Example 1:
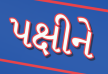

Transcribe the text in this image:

પક્ષીને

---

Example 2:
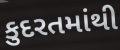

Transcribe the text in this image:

કુદરતમાંથી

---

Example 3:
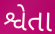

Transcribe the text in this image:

શ્વેતા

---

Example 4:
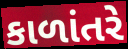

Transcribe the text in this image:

કાળાંતરે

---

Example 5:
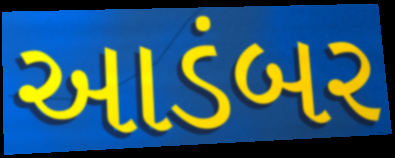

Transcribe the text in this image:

આડંબર